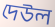
দেউল